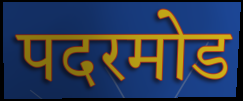
पदरमोड